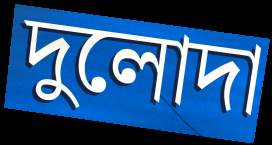
দুলোদা